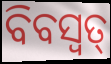
ବିବସ୍ଵତ୍